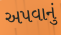
અપવાનું